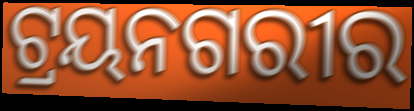
ଟ୍ରୟନଗରୀର